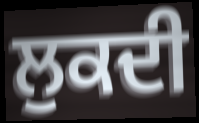
ਲੁਕਦੀ